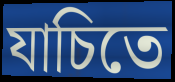
যাচিতে